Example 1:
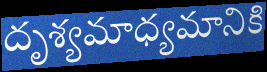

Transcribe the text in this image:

దృశ్యమాధ్యమానికి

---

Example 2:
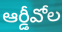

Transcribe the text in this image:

ఆర్డీవోల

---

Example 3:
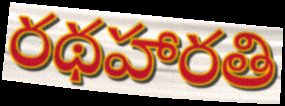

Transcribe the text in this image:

రథహారతి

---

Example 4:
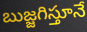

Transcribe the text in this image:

బుజ్జగిస్తూనే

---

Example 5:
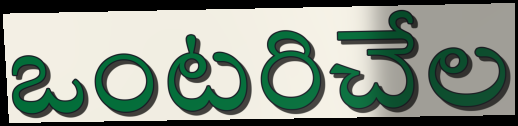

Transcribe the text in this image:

ఒంటరిచేల